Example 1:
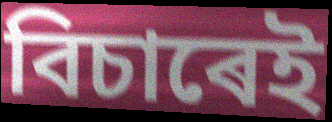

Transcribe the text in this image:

বিচাৰেই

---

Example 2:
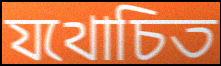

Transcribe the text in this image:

যথোচিত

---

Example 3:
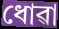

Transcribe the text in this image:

ধোৱা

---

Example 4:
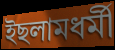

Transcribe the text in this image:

ইছলামধৰ্মী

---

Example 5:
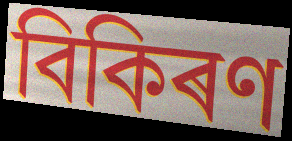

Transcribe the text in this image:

বিকিৰণ